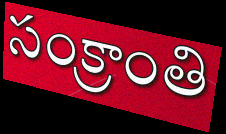
సంక్రాంతి